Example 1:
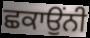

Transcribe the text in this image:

ਛਕਾਉਂਨੀ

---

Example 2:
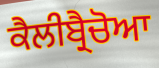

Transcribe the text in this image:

ਕੈਲੀਬ੍ਰੈਚੋਆ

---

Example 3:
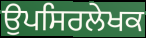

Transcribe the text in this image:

ਉਪਸਿਰਲੇਖਕ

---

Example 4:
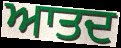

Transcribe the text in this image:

ਆਤਦ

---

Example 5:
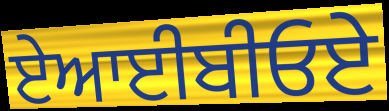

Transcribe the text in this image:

ਏਆਈਬੀਓਏ